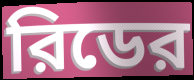
রিডের